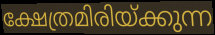
ക്ഷേത്രമിരിയ്ക്കുന്ന